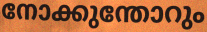
നോക്കുന്തോറും